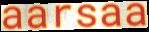
aarsaa